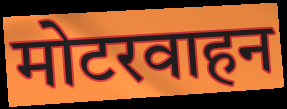
मोटरवाहन